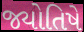
જ્યોતિષે